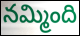
నమ్మింది